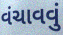
વંચાવવું